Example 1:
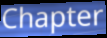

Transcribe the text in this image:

Chapter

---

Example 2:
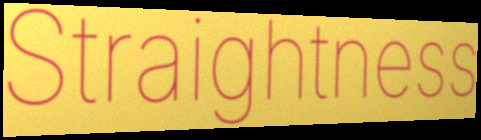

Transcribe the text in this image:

Straightness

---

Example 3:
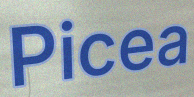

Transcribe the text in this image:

Picea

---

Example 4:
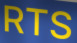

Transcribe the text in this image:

RTS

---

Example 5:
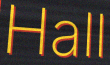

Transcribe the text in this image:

Hall